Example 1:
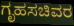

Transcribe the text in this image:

ಗೃಹಸಚಿವರ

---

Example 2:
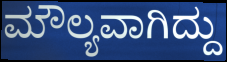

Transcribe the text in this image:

ಮೌಲ್ಯವಾಗಿದ್ದು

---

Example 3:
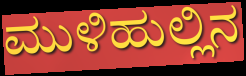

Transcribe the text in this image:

ಮುಳಿಹುಲ್ಲಿನ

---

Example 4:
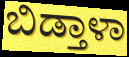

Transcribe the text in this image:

ಬಿಡ್ತಾಳಾ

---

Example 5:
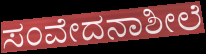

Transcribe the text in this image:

ಸಂವೇದನಾಶೀಲೆ